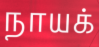
நாயக்